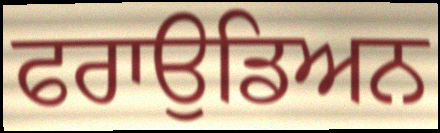
ਫਰਾਉਡਿਅਨ